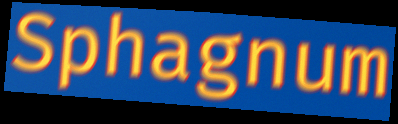
Sphagnum